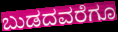
ಬುಡದವರೆಗೂ